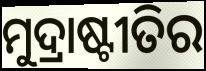
ମୁଦ୍ରାଷ୍ଟୀତିର